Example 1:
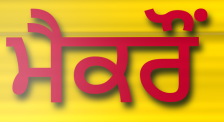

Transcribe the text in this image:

ਮੈਕਰੌਂ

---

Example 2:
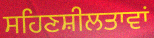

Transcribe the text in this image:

ਸਹਿਣਸ਼ੀਲਤਾਵਾਂ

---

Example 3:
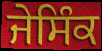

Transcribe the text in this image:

ਜੇਸਿੰਕ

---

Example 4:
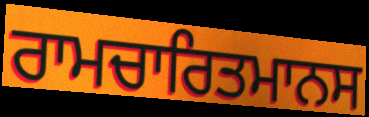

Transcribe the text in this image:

ਰਾਮਚਾਰਿਤਮਾਨਸ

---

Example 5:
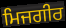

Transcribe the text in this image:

ਮਿਜਗੀਰ